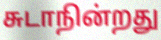
சுடாநின்றது